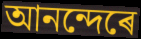
আনন্দেৰে